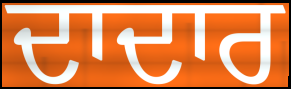
ਦਾਦਾਰ